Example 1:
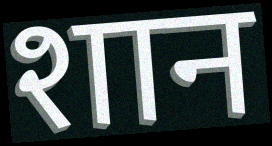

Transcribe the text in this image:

शान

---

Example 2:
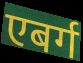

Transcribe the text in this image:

एबर्ग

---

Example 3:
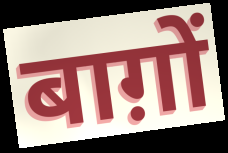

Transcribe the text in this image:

बाग़ों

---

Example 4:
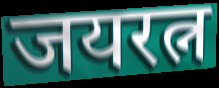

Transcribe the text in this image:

जयरत्न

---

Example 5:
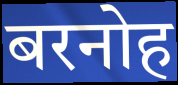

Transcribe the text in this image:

बरनोह